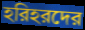
হরিহরদের